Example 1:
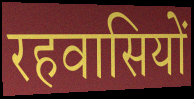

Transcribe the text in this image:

रहवासियों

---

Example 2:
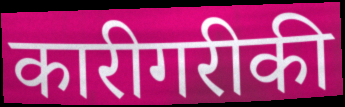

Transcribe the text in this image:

कारीगरीकी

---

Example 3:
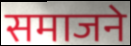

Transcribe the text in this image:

समाजने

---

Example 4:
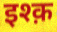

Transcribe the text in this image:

इश्क़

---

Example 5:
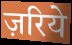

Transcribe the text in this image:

ज़रिये